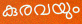
കുരവയും